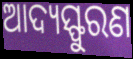
ଆଦ୍ୟସ୍ଫୁରଣ